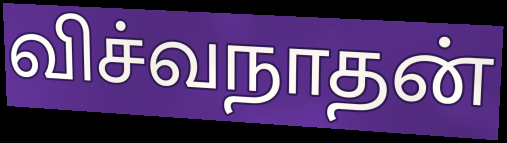
விச்வநாதன்